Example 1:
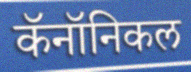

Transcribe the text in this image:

कॅनॉनिकल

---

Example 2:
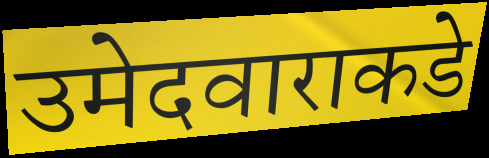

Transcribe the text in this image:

उमेदवाराकडे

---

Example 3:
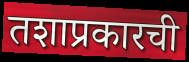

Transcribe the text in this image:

तशाप्रकारची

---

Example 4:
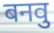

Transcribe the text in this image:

बनवु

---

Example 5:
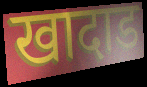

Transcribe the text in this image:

खादाड